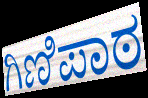
ಗಿಣಿಪಾಠ